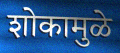
शोकामुळे